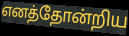
எனத்தோன்றிய